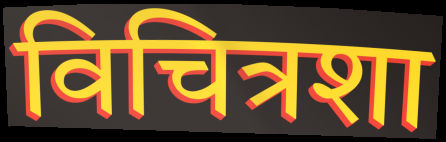
विचित्रशा